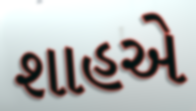
શાહએ